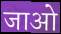
जाओ